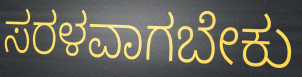
ಸರಳವಾಗಬೇಕು